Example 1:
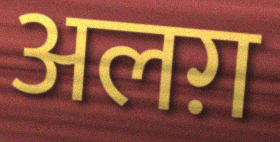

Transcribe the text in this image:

अलग़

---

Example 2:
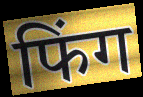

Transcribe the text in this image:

फिंग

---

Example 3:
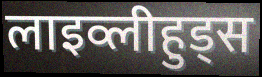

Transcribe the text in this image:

लाइव्लीहुड्स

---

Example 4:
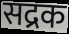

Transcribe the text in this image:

सद्रक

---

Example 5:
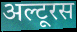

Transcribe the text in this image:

अल्टूरस